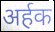
अर्हक